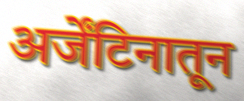
अर्जेंटिनातून